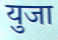
युजा